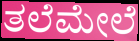
ತಲೆಮೇಲೆ